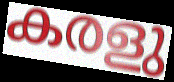
കരളു